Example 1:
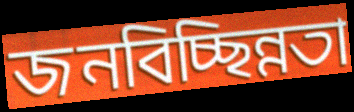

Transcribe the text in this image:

জনবিচ্ছিন্নতা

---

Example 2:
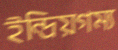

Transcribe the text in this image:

ইন্দ্রিয়গম্য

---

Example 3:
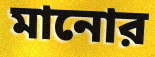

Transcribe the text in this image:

মানোর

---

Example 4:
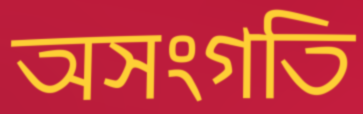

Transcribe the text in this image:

অসংগতি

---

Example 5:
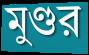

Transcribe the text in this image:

মুণ্ডর